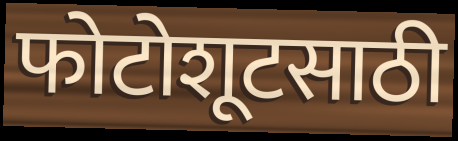
फोटोशूटसाठी